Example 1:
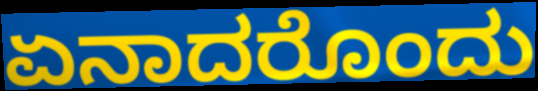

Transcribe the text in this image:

ಏನಾದರೊಂದು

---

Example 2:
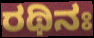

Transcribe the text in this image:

ರಥಿನಃ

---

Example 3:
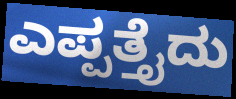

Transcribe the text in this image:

ಎಪ್ಪತ್ತೈದು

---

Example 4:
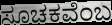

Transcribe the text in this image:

ಸೂಚಕವೆಂಬ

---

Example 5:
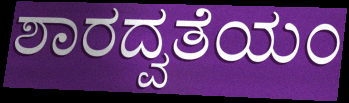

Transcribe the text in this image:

ಶಾರದ್ವತೆಯಂ